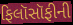
ફિલૉસૉફીની